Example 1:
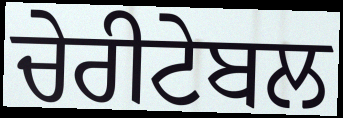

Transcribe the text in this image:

ਚੇਰੀਟੇਬਲ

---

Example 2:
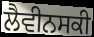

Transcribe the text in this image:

ਲੈਵੀਨਸਕੀ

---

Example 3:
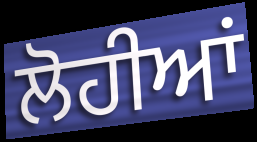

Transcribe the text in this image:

ਲੋਹੀਆਂ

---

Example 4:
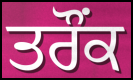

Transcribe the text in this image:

ਤਰੌਂਕ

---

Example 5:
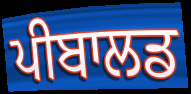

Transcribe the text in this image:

ਪੀਬਾਲਡ